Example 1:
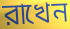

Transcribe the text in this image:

রাখেন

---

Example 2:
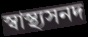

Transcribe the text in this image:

স্বাস্থ্যসনদ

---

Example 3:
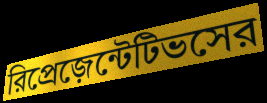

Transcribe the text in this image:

রিপ্রেজ়েন্টেটিভসের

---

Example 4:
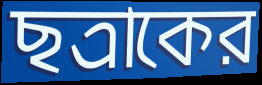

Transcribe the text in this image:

ছত্রাকের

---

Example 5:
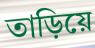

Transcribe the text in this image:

তাড়িয়ে